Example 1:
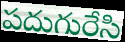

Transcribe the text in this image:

పదుగురేసి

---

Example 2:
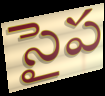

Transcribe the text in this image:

సైప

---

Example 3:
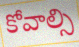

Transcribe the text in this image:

కోవాల్సి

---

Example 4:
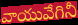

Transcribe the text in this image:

వాయువేగినీ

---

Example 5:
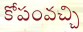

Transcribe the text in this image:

కోపంవచ్చి